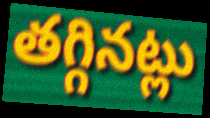
తగ్గినట్లు